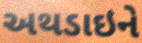
અથડાઇને